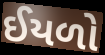
ઈયળો